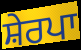
ਸ਼ੇਰਪਾ